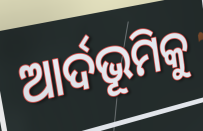
ଆର୍ଦଭୂମିକୁ